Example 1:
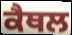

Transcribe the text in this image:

ਕੈਥਲ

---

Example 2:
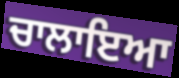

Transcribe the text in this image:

ਚਾਲਾਇਆ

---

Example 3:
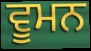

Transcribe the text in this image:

ਵੂਮਨ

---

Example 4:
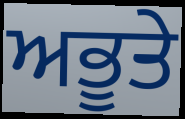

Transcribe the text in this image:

ਅਭੂਤੇ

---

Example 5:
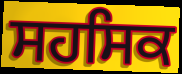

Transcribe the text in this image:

ਸਹਸਿਕ